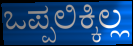
ಒಪ್ಪಲಿಕ್ಕಿಲ್ಲ